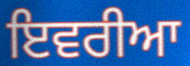
ਇਵਰੀਆ